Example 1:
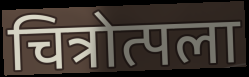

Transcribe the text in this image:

चित्रोत्पला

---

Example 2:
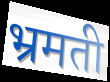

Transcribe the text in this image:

भ्रमती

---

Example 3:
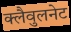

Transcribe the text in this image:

क्लैवुलनेट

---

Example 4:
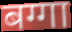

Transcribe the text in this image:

बग्गा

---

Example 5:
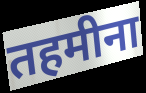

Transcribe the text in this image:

तहमीना